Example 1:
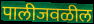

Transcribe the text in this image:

पालीजवळील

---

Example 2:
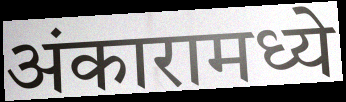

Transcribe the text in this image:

अंकारामध्ये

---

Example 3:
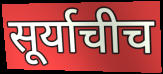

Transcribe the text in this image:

सूर्याचीच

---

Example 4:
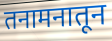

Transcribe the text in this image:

तनामनातून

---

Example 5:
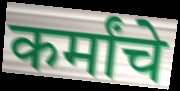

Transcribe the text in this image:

कर्मांचे